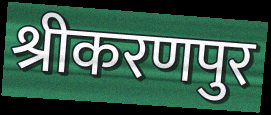
श्रीकरणपुर